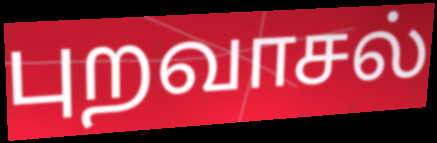
புறவாசல்